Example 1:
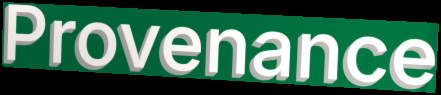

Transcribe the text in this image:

Provenance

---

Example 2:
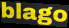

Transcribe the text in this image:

blago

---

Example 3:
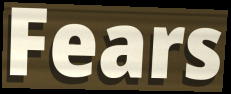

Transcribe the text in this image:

Fears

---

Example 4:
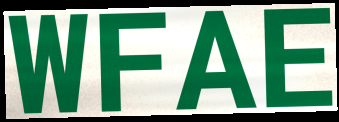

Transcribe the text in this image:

WFAE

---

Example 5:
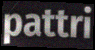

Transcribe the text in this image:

pattri